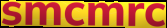
smcmrc